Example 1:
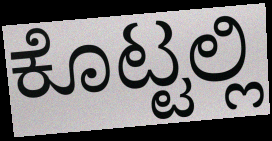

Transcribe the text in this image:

ಕೊಟ್ಟಲ್ಲಿ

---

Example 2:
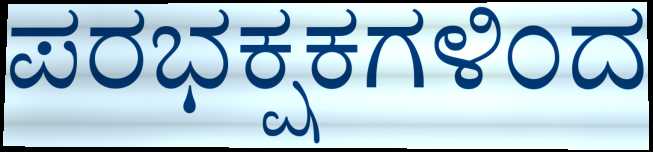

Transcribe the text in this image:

ಪರಭಕ್ಷಕಗಳಿಂದ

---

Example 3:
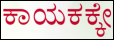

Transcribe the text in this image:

ಕಾಯಕಕ್ಕೇ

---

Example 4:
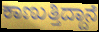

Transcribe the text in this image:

ಕಾಣುತ್ತಿದ್ದಾನೆ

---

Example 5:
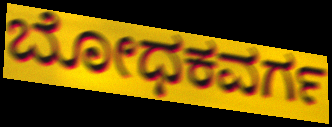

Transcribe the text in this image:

ಬೋಧಕವರ್ಗ